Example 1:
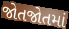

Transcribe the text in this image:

જોતજોતમાં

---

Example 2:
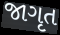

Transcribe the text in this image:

જાગૃત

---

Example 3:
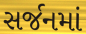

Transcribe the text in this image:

સર્જનમાં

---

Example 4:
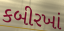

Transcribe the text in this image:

કબીરખાં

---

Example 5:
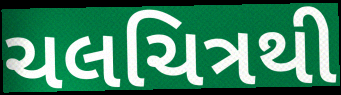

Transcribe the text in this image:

ચલચિત્રથી